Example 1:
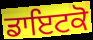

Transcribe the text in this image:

ਡਾਇਟਕੋ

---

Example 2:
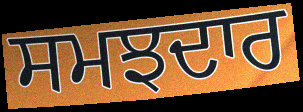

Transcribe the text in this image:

ਸਮਝਦਾਰ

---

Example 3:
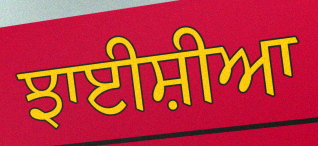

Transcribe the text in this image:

ਝਾਈਸ਼ੀਆ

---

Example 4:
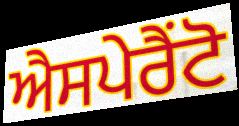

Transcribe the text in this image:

ਐਸਪੇਰੈਂਟੋ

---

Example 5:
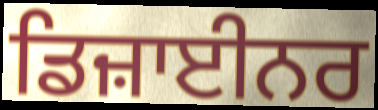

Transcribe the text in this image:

ਡਿਜ਼ਾਈਨਰ